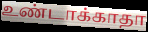
உண்டாக்காதா